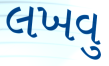
લખવુ